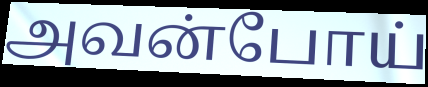
அவன்போய்